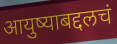
आयुष्याबद्दलचं